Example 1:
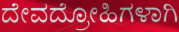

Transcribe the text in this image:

ದೇವದ್ರೋಹಿಗಳಾಗಿ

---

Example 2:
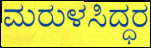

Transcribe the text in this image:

ಮರುಳಸಿದ್ಧರ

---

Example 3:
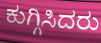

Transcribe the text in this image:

ಕುಗ್ಗಿಸಿದರು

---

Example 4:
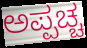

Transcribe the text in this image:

ಅಪ್ಪಚ್ಚ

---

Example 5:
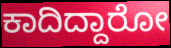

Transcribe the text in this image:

ಕಾದಿದ್ದಾರೋ